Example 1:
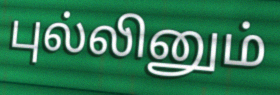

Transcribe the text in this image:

புல்லினும்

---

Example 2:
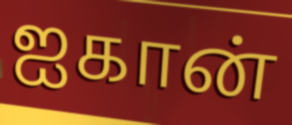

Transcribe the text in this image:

ஐகான்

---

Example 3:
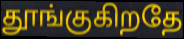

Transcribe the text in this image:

தூங்குகிறதே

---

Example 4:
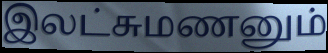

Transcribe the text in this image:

இலட்சுமணனும்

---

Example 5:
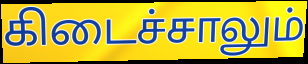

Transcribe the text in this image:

கிடைச்சாலும்